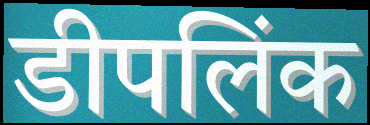
डीपलिंक